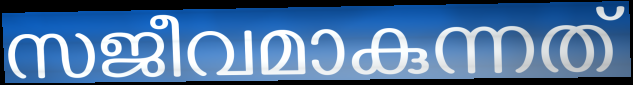
സജീവമാകുന്നത്